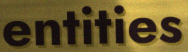
entities